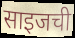
साइजची